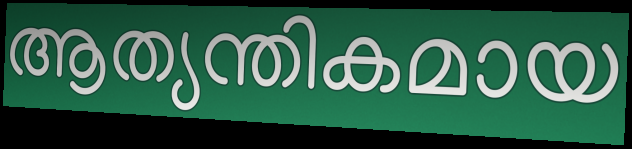
ആത്യന്തികമായ